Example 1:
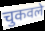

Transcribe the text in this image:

चुकवले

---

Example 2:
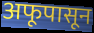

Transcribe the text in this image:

अफूपासून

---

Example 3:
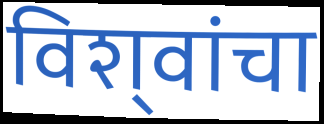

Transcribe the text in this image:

विश्वांचा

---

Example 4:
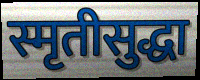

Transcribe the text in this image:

स्मृतीसुद्धा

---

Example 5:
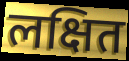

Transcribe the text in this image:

लक्षित